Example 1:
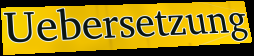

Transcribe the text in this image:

Uebersetzung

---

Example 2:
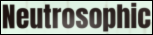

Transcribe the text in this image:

Neutrosophic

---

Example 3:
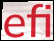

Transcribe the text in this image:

efi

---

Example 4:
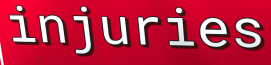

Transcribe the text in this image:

injuries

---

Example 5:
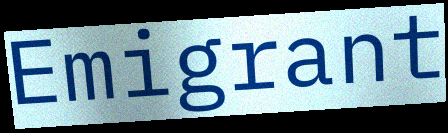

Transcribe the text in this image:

Emigrant